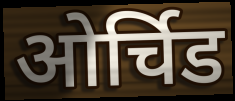
ओर्चिड